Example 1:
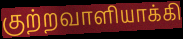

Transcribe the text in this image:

குற்றவாளியாக்கி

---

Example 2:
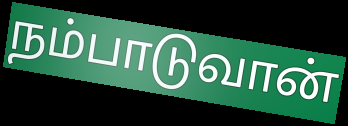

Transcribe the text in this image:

நம்பாடுவான்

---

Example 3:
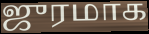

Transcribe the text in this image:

ஜுரமாக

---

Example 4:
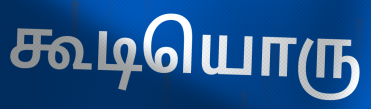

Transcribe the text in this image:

கூடியொரு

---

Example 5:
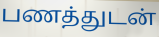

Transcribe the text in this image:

பணத்துடன்